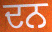
ਦਨ